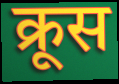
क्रूस